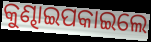
କୁଣ୍ଢାଇପକାଇଲେ